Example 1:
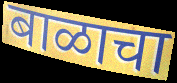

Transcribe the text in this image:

बाळाचा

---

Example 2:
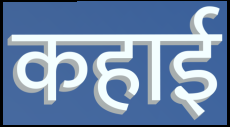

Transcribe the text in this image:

कहाई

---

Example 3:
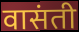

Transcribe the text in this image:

वासंती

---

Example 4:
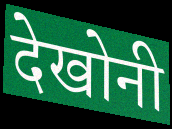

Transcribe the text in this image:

देखोनी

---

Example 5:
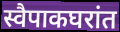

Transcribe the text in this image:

स्वैपाकघरांत